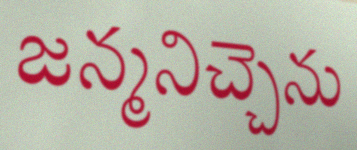
జన్మనిచ్చెను